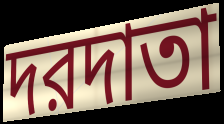
দরদাতা